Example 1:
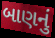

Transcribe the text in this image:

બાણનું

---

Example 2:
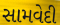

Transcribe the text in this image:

સામવેદી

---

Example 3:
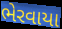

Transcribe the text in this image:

ભેરવાયા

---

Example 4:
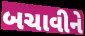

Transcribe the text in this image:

બચાવીને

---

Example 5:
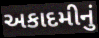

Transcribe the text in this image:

અકાદમીનું